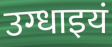
उग्धाइयं